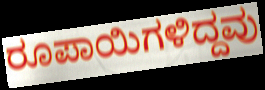
ರೂಪಾಯಿಗಳಿದ್ದವು